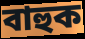
বাহুক